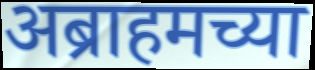
अब्राहमच्या